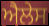
ਐਲੇਸ